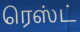
ரெஸ்ட்